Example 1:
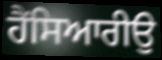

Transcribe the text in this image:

ਹੈਂਸਿਆਰੀਉ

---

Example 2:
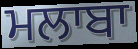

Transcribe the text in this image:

ਮਲਾਬਾ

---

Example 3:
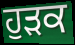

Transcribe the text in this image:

ਹੁੜਕ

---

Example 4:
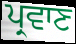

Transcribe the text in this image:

ਪ੍ਰਵਾਣ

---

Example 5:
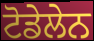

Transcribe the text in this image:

ਟੋਡੇਲੇਨ